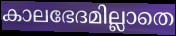
കാലഭേദമില്ലാതെ